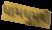
ધામધુમથી